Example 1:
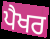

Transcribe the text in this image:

ਪੈਖਰ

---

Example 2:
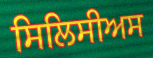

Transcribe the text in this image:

ਸਿਲਿਸੀਅਸ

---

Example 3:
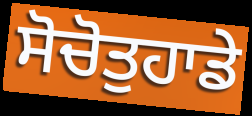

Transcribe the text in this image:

ਸੋਚੋਤੁਹਾਡੇ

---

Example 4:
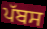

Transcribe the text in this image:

ਪੱਬਸ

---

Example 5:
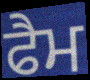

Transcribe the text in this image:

ਫੈਮ